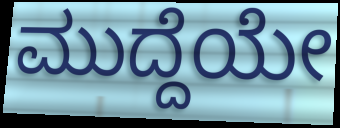
ಮುದ್ದೆಯೇ